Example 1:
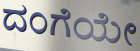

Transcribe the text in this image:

ದಂಗೆಯೇ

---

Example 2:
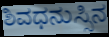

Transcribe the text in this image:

ಶಿವಧನುಸ್ಸಿನ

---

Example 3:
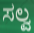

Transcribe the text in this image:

ಸಲ್ವ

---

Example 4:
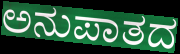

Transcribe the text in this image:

ಅನುಪಾತದ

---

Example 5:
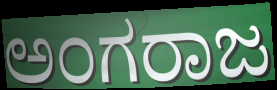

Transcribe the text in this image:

ಅಂಗರಾಜ